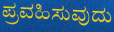
ಪ್ರವಹಿಸುವುದು